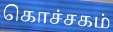
கொச்சகம்